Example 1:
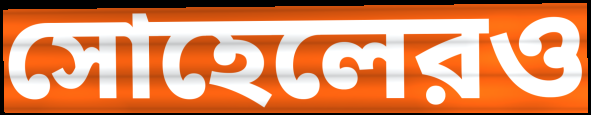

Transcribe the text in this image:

সোহেলেরও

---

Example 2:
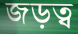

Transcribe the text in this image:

জড়ত্ব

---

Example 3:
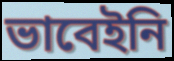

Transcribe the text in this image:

ভাবেইনি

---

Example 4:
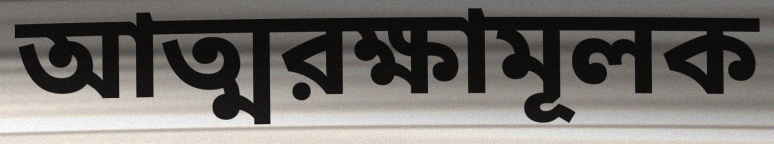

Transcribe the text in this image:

আত্মরক্ষামূলক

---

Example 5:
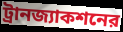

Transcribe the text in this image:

ট্রানজ্যাকশনের